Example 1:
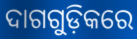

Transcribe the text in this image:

ଦାଗଗୁଡ଼ିକରେ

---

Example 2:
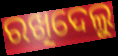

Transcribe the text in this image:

ରଖିଦେଲୁ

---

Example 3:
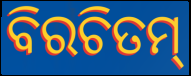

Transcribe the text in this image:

ବିରଚିତମ୍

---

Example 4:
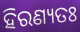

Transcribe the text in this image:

ହିରଣ୍ୟତଃ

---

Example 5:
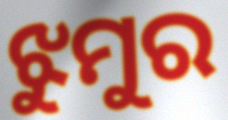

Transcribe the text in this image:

ଝୁମୁର